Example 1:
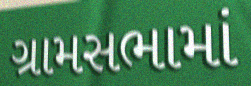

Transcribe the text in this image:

ગ્રામસભામાં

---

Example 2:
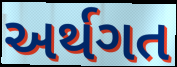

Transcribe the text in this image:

અર્થગત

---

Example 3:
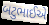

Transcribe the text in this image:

બટુભાઈએ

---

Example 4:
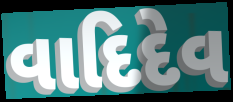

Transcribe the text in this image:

વાદિદેવ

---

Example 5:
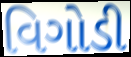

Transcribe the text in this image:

વિગોડી